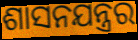
ଶାସନଯନ୍ତ୍ରର